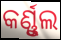
କର୍ଣ୍ଣୁଲ